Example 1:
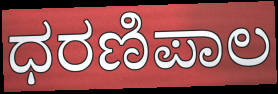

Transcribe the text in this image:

ಧರಣಿಪಾಲ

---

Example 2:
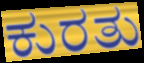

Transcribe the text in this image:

ಕುರತು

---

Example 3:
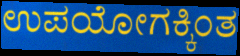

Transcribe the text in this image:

ಉಪಯೋಗಕ್ಕಿಂತ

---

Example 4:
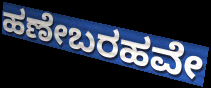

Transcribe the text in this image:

ಹಣೇಬರಹವೇ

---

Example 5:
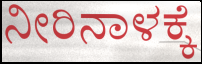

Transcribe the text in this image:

ನೀರಿನಾಳಕ್ಕೆ